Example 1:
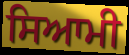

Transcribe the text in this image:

ਸਿਆਮੀ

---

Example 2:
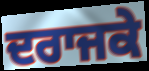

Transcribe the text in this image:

ਦਰਾਜਕੇ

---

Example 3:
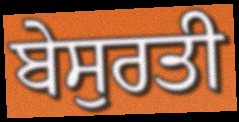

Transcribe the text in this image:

ਬੇਸੁਰਤੀ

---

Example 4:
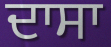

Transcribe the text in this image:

ਦਾਸਾ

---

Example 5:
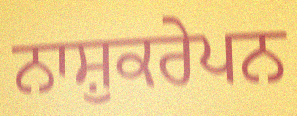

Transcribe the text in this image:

ਨਾਸ਼ੁਕਰੇਪਨ